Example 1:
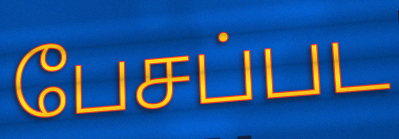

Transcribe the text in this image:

பேசப்பட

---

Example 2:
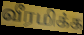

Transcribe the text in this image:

வீரமிக்க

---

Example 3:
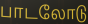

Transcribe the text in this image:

பாடலோடு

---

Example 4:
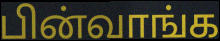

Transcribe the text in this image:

பின்வாங்க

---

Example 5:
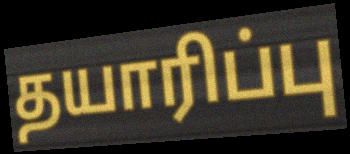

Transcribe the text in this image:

தயாரிப்பு